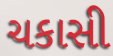
ચકાસી